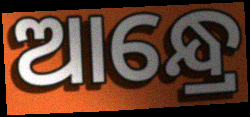
ଆନ୍ଧ୍ରେ